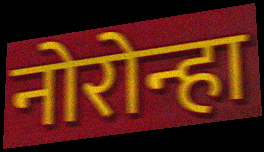
नोरोन्हा